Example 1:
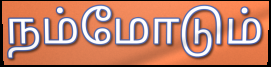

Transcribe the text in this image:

நம்மோடும்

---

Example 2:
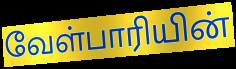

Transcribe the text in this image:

வேள்பாரியின்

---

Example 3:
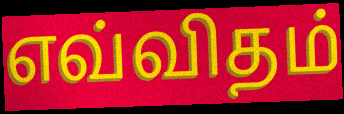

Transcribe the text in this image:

எவ்விதம்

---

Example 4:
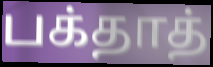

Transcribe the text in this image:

பக்தாத்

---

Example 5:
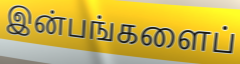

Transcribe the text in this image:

இன்பங்களைப்